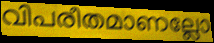
വിപരീതമാണല്ലോ